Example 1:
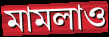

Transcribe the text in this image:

মামলাও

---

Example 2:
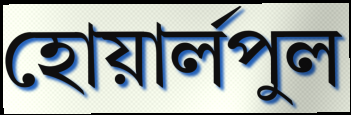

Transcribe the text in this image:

হোয়ার্লপুল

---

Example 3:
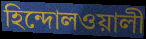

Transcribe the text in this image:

হিন্দোলওয়ালী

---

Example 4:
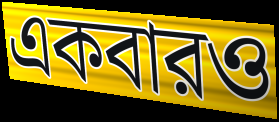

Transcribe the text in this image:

একবারও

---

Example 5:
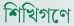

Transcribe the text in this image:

শিখিগণে